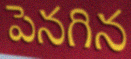
పెనగిన